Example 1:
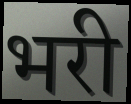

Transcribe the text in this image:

भरी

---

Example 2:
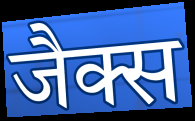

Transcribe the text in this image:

जैक्स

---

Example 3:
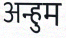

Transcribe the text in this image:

अन्हुम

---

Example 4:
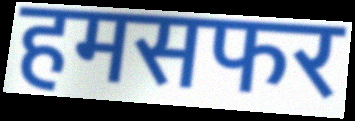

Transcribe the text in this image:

हमसफर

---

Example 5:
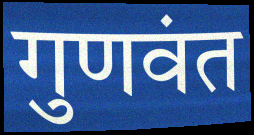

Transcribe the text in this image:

गुणवंत